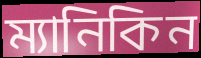
ম্যানিকিন